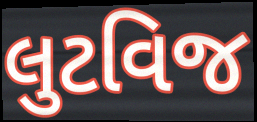
લુટવિજ